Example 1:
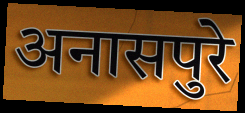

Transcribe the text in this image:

अनासपुरे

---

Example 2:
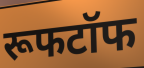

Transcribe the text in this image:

रूफटॉफ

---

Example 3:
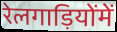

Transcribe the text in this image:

रेलगाड़ियोंमें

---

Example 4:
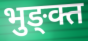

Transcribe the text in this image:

भुङ्क्त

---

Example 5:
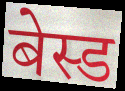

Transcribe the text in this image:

बेस्ड